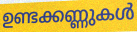
ഉണ്ടക്കണ്ണുകൾ